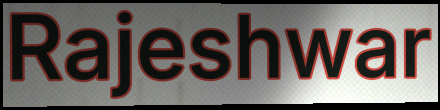
Rajeshwar